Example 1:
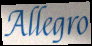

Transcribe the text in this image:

Allegro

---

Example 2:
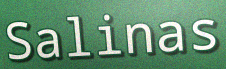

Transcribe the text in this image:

Salinas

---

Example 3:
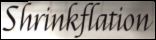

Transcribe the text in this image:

Shrinkflation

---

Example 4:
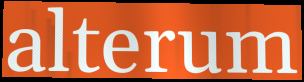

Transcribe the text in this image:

alterum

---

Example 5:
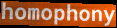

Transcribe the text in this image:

homophony